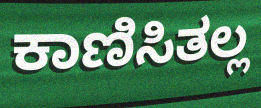
ಕಾಣಿಸಿತಲ್ಲ